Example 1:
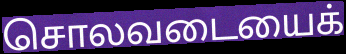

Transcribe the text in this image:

சொலவடையைக்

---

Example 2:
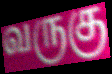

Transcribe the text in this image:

வருகு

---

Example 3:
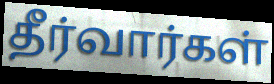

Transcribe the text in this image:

தீர்வார்கள்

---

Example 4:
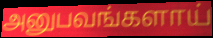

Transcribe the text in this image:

அனுபவங்களாய்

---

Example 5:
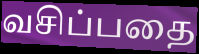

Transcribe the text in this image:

வசிப்பதை